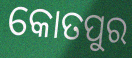
କୋତପୁର